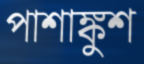
পাশাঙ্কুশ